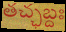
తచ్ఛబ్దః